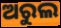
ଅରୁଲ